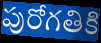
పురోగతికి